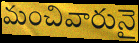
మంచివారునై